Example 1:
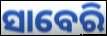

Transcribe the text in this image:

ସାବେରି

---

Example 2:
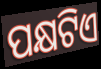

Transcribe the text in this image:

ପକ୍ଷଟିଏ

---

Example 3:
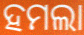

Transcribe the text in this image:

ହମଲା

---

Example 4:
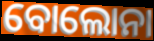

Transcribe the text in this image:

ବୋଲୋନା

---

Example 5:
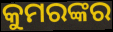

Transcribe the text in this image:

କୁମରଙ୍କର